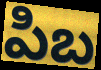
పిబ